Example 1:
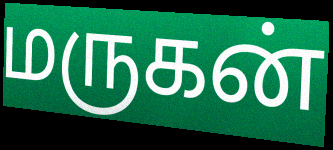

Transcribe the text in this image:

மருகன்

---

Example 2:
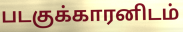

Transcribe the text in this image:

படகுக்காரனிடம்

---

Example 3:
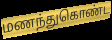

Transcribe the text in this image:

மணந்துகொண்ட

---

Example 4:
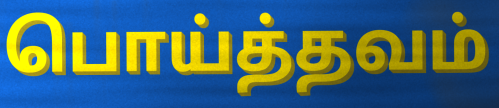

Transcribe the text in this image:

பொய்த்தவம்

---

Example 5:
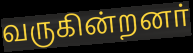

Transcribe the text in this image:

வருகின்றனர்